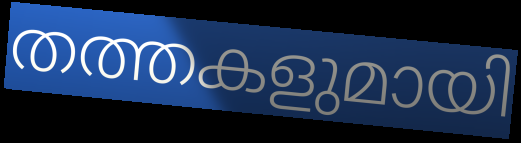
തത്തകളുമായി